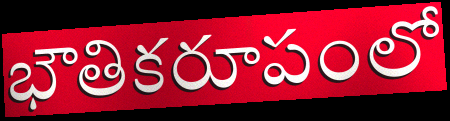
భౌతికరూపంలో